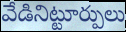
వేడినిట్టూర్పులు